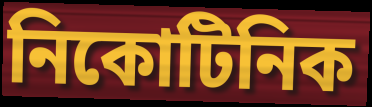
নিকোটিনিক